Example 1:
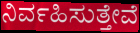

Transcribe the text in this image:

ನಿರ್ವಹಿಸುತ್ತೇವೆ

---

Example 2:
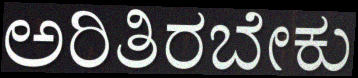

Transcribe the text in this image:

ಅರಿತಿರಬೇಕು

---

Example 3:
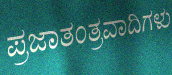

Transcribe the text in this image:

ಪ್ರಜಾತಂತ್ರವಾದಿಗಳು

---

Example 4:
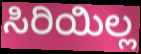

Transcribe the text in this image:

ಸಿರಿಯಿಲ್ಲ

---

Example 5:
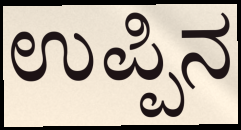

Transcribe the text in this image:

ಉಪ್ಪಿನ